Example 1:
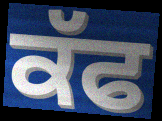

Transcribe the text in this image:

ਕੱਫ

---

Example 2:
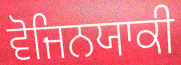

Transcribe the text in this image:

ਵੋਜਿਨਯਾਕੀ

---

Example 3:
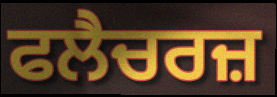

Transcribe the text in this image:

ਫਲੈਚਰਜ਼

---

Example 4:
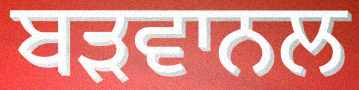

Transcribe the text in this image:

ਬੜਵਾਨਲ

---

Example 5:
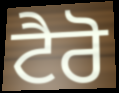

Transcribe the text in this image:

ਟੈਰੋ